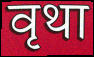
वृथा